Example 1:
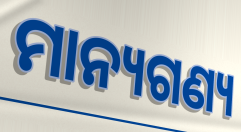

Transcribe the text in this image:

ମାନ୍ୟଗଣ୍ୟ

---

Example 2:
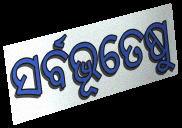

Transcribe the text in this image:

ସର୍ବଭୂତେଷୁ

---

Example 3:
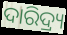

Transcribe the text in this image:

ଦାରିଦ୍ର୍ୟ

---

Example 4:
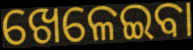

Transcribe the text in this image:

ଖେଳେଇବା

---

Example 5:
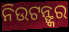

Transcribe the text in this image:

ନିଉଟନ୍ଙ୍କର